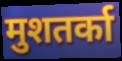
मुशतर्का